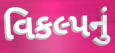
વિકલ્પનું